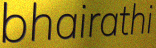
bhairathi